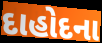
દાહોદના